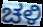
ಚಳಿ